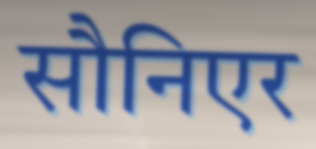
सौनिएर